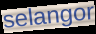
selangor